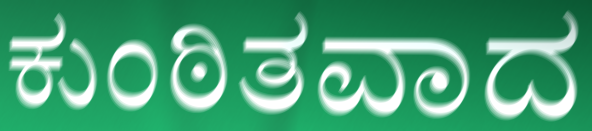
ಕುಂಠಿತವಾದ